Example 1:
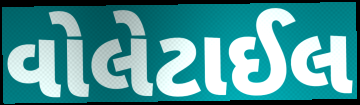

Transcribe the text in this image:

વોલેટાઈલ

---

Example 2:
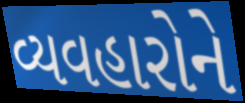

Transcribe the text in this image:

વ્યવહારોને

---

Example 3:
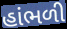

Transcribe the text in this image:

હાંભળી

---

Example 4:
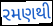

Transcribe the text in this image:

રમણથી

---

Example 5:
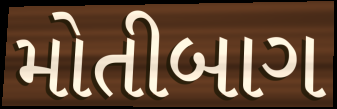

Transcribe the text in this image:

મોતીબાગ